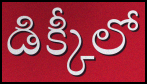
డిక్కీలో